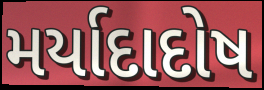
મર્યાદાદોષ